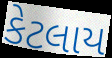
કેટલાય